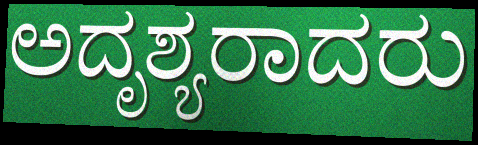
ಅದೃಶ್ಯರಾದರು